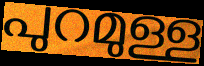
പുറമുള്ള